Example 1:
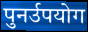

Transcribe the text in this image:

पुनर्उपयोग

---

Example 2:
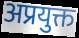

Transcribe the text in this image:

अप्रयुक्त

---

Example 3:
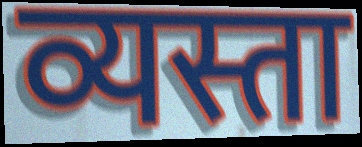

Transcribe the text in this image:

व्यस्ता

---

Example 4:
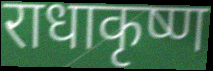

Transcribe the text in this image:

राधाकृष्ण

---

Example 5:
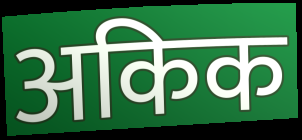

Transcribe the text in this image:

अकिक